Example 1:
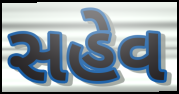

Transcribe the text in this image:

સહેવ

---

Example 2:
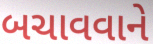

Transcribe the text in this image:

બચાવવાને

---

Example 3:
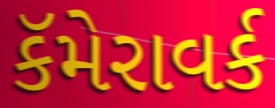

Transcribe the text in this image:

કૅમેરાવર્ક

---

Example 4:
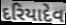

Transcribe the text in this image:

દરિયાદેવ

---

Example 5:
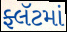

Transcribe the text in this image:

ફ્લૅટમાં